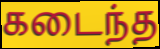
கடைந்த